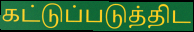
கட்டுப்படுத்திட